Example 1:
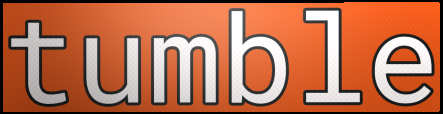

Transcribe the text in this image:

tumble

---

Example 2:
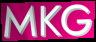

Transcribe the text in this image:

MKG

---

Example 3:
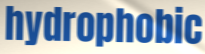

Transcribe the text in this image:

hydrophobic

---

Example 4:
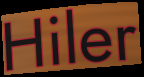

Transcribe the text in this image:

Hiler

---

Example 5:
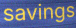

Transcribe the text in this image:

savings